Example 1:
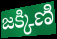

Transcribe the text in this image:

జక్కిణి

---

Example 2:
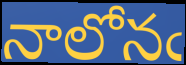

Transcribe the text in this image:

నాలోనఁ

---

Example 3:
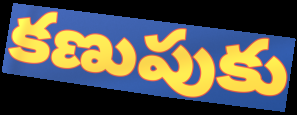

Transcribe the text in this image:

కణుపుకు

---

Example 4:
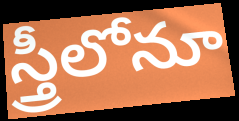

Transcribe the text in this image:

స్త్రీలోనూ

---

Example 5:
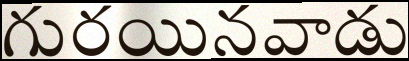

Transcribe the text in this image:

గురయినవాడు